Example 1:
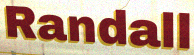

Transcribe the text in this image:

Randall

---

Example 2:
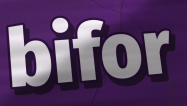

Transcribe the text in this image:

bifor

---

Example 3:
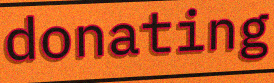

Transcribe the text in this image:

donating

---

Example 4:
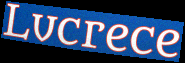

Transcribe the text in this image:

Lucrece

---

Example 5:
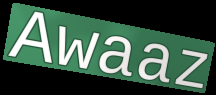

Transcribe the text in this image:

Awaaz